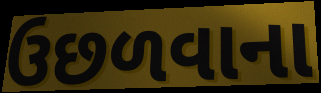
ઉછળવાના